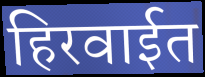
हिरवाईत